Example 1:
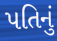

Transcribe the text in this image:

પતિનું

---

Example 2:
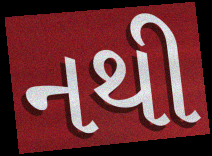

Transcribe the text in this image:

નથી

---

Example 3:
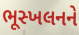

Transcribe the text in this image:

ભૂસ્ખલનને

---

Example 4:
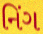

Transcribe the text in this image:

નિંગ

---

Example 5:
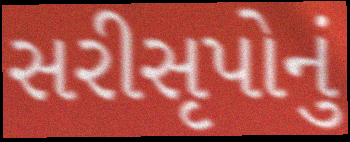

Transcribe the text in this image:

સરીસૃપોનું